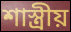
শাস্ত্রীয়